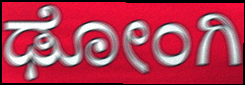
ಢೋಂಗಿ